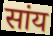
सांय